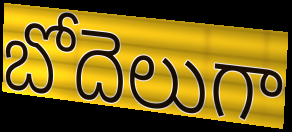
బోదెలుగా